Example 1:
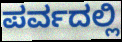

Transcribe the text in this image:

ಪರ್ವದಲ್ಲಿ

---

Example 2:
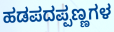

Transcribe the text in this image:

ಹಡಪದಪ್ಪಣ್ಣಗಳ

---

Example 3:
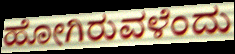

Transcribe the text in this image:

ಹೋಗಿರುವಳೆಂದು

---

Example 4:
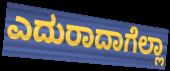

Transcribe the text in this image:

ಎದುರಾದಾಗೆಲ್ಲಾ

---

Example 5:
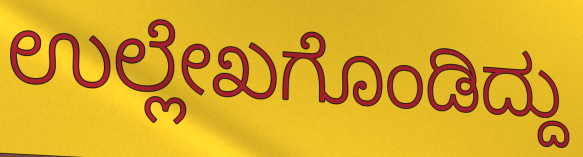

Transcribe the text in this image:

ಉಲ್ಲೇಖಗೊಂಡಿದ್ದು